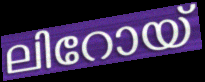
ലിറോയ്